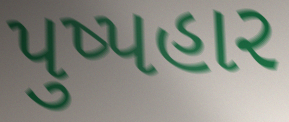
પુષ્પહાર